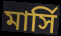
মার্সি